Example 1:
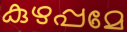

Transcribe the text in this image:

കുഴപ്പമേ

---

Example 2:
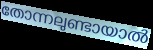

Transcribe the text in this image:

തോന്നലുണ്ടായാൽ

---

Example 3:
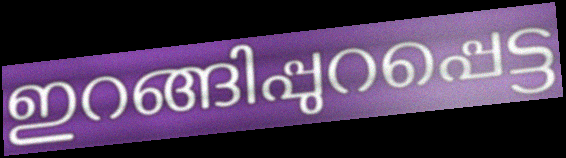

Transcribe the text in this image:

ഇറങ്ങിപ്പുറപ്പെട്ട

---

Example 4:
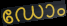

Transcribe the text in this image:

ഡോം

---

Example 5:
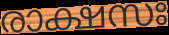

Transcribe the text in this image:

രാക്ഷസഃ